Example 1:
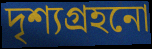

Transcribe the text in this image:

দৃশ্যগ্ৰহনো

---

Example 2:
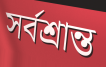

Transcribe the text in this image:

সৰ্বশ্ৰান্ত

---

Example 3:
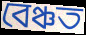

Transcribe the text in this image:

বেঞ্চত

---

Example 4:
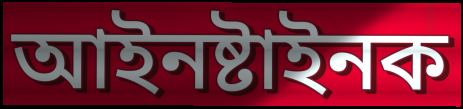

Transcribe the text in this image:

আইনষ্টাইনক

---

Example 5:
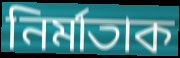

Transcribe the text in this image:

নিৰ্মাতাক